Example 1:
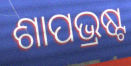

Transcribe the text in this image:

ଶାପଭ୍ରଷ୍ଟ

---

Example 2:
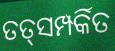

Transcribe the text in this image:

ତତ୍‌ସମ୍ପର୍କିତ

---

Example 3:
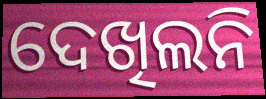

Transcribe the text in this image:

ଦେଖିଲନି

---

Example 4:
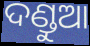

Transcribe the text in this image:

ଦଣ୍ଡୁଆ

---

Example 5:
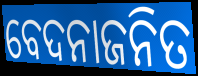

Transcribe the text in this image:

ବେଦନାଜନିତ